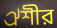
ঐশীর